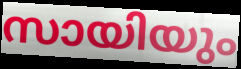
സായിയും